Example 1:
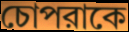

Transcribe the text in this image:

চোপরাকে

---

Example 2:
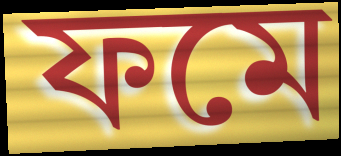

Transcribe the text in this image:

ফমে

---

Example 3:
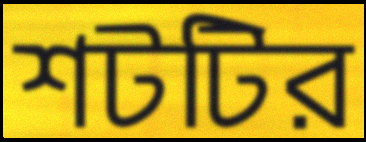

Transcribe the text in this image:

শটটির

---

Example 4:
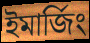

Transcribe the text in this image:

ইমার্জিং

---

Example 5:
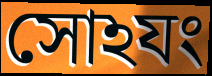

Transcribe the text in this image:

সোঽযং